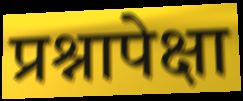
प्रश्नापेक्षा